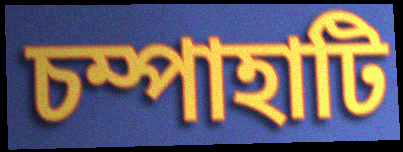
চম্পাহাটি